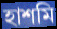
হাশমি